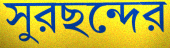
সুরছন্দের